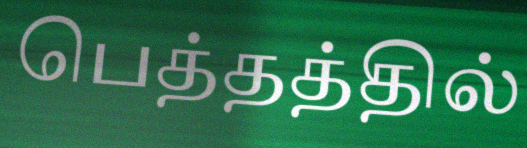
பெத்தத்தில்